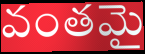
వంతమై